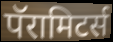
पॅरामिटर्स